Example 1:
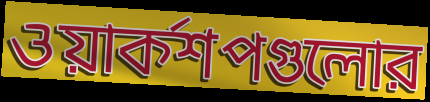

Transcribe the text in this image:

ওয়ার্কশপগুলোর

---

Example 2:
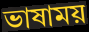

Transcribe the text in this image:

ভাষাময়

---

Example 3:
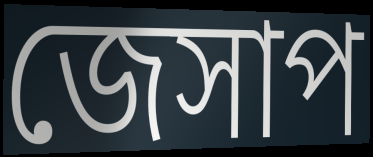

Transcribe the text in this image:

জেসাপ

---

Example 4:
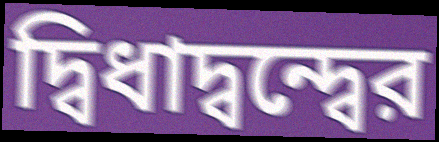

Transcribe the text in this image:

দ্বিধাদ্বন্দ্বের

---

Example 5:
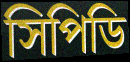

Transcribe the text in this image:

সিপিডি